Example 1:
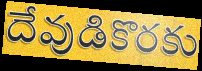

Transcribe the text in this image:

దేవుడికొరకు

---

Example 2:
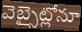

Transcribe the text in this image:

వెబ్సైట్లోనూ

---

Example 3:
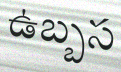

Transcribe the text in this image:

ఉబ్బస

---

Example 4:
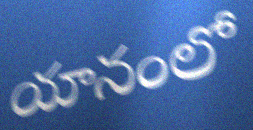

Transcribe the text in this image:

యానంలో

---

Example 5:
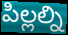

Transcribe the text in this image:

పిల్లల్ని